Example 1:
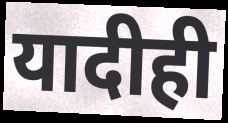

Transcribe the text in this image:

यादीही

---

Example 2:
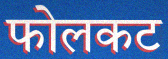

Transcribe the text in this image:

फोलकट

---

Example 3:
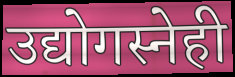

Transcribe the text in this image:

उद्योगस्नेही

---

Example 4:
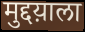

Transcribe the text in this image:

मुद्दय़ाला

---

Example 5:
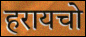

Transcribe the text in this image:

हरायचो